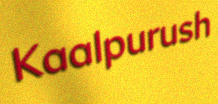
Kaalpurush